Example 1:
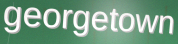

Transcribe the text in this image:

georgetown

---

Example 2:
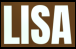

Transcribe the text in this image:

LISA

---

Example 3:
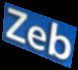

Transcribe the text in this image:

Zeb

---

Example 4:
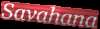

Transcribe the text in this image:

Savahana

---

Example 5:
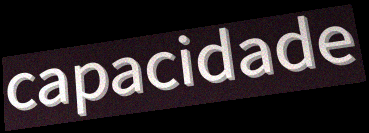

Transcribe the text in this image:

capacidade